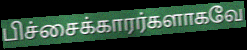
பிச்சைக்காரர்களாகவே